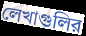
লেখাগুলির